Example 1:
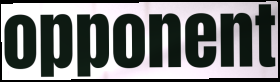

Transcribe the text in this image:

opponent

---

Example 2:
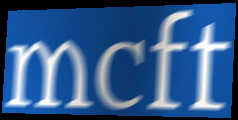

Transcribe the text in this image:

mcft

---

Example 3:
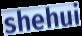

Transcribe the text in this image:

shehui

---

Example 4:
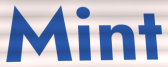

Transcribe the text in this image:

Mint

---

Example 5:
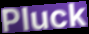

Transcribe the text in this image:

Pluck